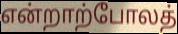
என்றாற்போலத்